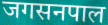
जगसनपाल